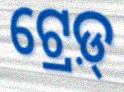
ଟ୍ରେଡ଼୍